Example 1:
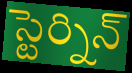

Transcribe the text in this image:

స్టెర్నిన్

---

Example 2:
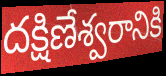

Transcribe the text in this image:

దక్షిణేశ్వరానికి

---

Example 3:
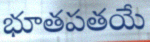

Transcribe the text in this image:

భూతపతయే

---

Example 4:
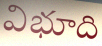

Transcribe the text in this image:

విభూది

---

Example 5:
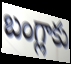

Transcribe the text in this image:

బంగ్లాకు